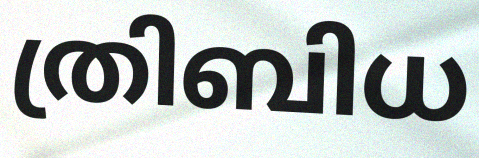
ത്രിബിധ